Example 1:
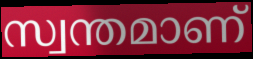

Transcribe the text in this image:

സ്വന്തമാണ്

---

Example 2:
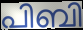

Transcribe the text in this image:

പിബി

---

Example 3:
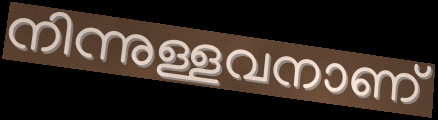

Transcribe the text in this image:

നിന്നുള്ളവനാണ്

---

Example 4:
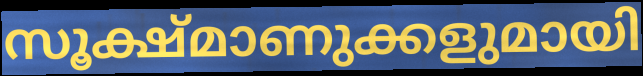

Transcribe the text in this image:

സൂക്ഷ്മാണുക്കളുമായി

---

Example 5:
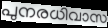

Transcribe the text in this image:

പുനരധിവാസ